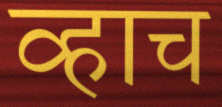
व्हाच